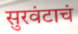
सुरवंटाचं